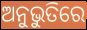
ଅନୁଭୁତିରେ